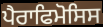
ਪੈਰਾਫਿਮੋਸਿਸ